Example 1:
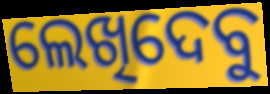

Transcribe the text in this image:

ଲେଖିଦେବୁ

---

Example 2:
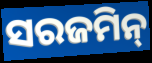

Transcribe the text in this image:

ସରଜମିନ୍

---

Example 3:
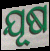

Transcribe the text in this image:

ଯୂଷ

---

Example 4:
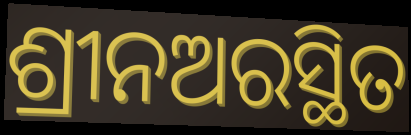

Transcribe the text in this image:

ଶ୍ରୀନଅରସ୍ଥିତ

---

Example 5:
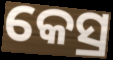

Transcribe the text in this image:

କେସ୍ର